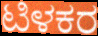
ಟಿಳಕರ